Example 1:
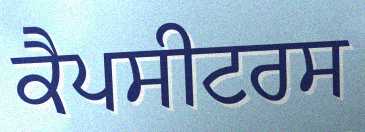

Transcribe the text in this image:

ਕੈਪਸੀਟਰਸ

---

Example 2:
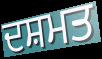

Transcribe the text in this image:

ਦਸ਼ਮਤ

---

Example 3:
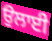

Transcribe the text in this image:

ਉਲਾਈ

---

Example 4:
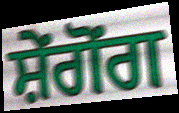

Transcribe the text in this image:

ਸ਼ੇਂਗੋਂਗ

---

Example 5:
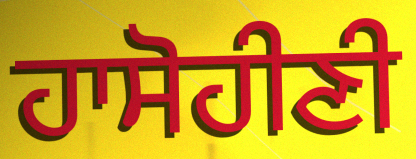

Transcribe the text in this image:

ਹਾਸੋਹੀਣੀ